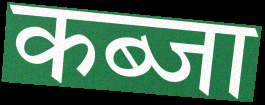
कब्जा